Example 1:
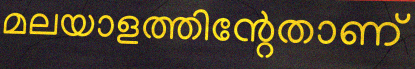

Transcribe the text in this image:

മലയാളത്തിന്റേതാണ്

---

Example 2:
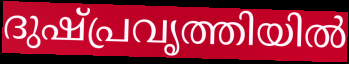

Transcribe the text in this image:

ദുഷ്പ്രവൃത്തിയിൽ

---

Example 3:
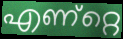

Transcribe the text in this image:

എണ്റ്റെ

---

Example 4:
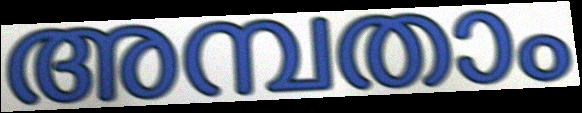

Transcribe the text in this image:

അമ്പതാം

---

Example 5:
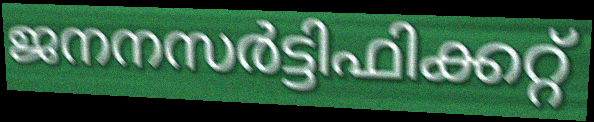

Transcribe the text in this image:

ജനനസർട്ടിഫിക്കറ്റ്